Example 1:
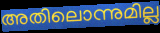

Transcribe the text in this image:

അതിലൊന്നുമില്ല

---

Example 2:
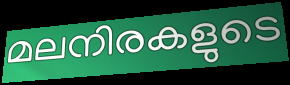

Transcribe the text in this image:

മലനിരകളുടെ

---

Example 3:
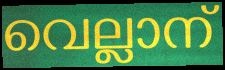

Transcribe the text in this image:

വെല്ലാന്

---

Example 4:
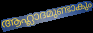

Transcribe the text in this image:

ആഹ്ലാദമുണ്ടാകും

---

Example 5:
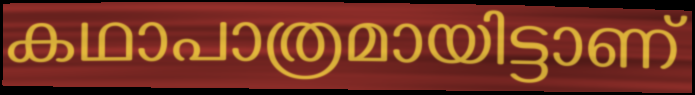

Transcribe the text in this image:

കഥാപാത്രമായിട്ടാണ്